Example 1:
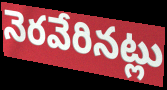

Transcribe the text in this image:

నెరవేరినట్లు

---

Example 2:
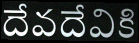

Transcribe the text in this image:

దేవదేవికి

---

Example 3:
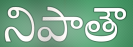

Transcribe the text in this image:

నిపాతౌ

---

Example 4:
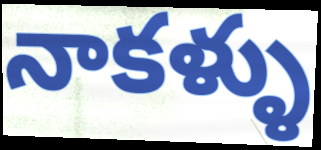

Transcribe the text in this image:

నాకళ్ళు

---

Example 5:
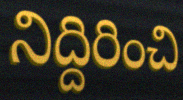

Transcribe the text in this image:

నిద్దిరించి